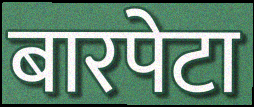
बारपेटा